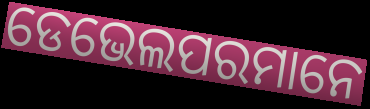
ଡେଭେଲପରମାନେ